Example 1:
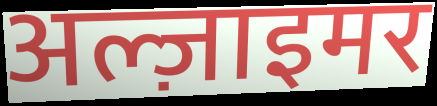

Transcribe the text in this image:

अल्ज़ाइमर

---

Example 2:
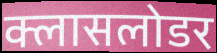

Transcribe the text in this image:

क्लासलोडर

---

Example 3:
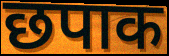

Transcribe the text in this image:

छपाक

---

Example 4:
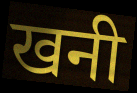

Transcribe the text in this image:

खनी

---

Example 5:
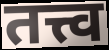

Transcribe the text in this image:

तत्त्व